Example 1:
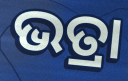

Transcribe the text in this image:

ଭତ୍ରା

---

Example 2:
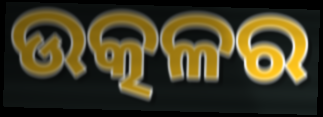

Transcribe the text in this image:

ଉତ୍କଳର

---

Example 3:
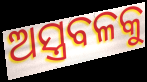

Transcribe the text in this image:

ଅସ୍ତ୍ରବଳକୁ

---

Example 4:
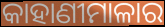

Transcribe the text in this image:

କାହାଣୀମାଳାର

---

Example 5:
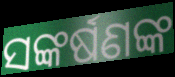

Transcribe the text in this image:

ସଙ୍କର୍ଷଣଙ୍କ